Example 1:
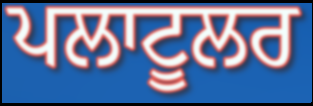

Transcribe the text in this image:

ਪਲਾਟੂਲਰ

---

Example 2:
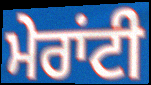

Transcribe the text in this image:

ਮੇਰਾਂਟੀ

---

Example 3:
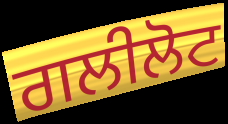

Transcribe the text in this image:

ਗਲੀਲੋਟ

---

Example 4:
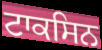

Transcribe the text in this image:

ਟਾਕਸਿਨ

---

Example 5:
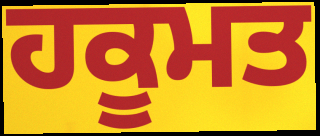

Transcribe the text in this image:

ਹਕੂਮਤ